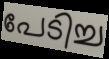
പേടിച്ച